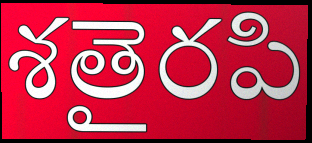
శతైరపి